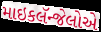
માઇકલૅન્જેલોએ